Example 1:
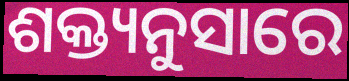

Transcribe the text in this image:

ଶକ୍ତ୍ୟନୁସାରେ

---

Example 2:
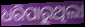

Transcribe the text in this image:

ଧରିପାରୁଥିଲା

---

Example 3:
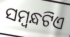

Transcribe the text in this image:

ସମ୍ୱନ୍ଧଟିଏ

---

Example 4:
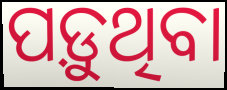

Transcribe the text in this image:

ପଡ଼ୁଥିବା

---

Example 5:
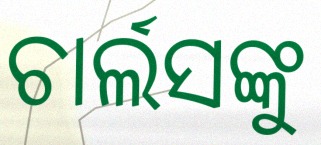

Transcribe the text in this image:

ଚାର୍ଲସଙ୍କୁ